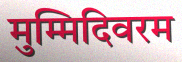
मुम्मिदिवरम